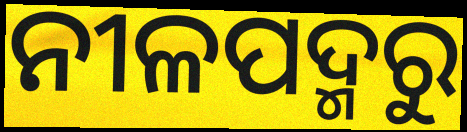
ନୀଳପଦ୍ମରୁ